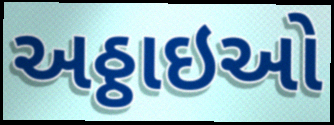
અઠ્ઠાઇઓ